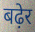
बढ़ेर